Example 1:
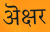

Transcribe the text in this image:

ऄक्षर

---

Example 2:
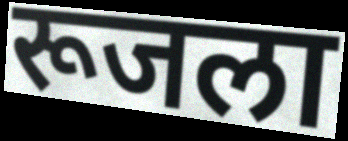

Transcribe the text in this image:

रूजला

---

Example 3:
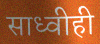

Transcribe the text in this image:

साध्वीही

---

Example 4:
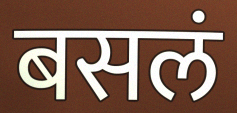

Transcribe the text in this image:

बसलं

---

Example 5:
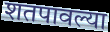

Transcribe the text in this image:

शतपावल्या